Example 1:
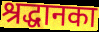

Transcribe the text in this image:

श्रद्धानका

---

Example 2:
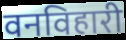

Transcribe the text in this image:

वनविहारी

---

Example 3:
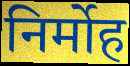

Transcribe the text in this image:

निर्मोह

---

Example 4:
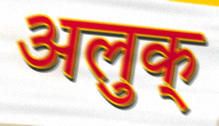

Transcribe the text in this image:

अलुक्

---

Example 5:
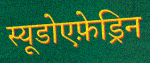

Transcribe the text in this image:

स्यूडोएफ़ेड्रिन